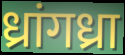
ध्रांगध्रा